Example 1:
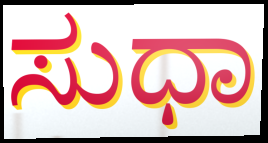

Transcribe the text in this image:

ಸುಧಾ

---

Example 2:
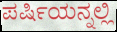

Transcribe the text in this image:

ಪರ್ಷಿಯನ್ನಲ್ಲಿ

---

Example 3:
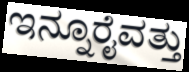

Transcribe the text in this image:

ಇನ್ನೂರೈವತ್ತು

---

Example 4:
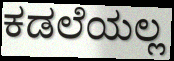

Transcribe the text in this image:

ಕಡಲೆಯಲ್ಲ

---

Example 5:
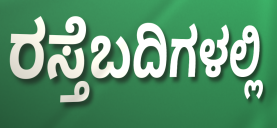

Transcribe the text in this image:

ರಸ್ತೆಬದಿಗಳಲ್ಲಿ